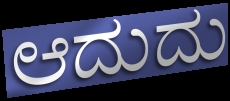
ಆದುದು